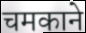
चमकाने